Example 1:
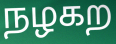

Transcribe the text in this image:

நழகற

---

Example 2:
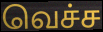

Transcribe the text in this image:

வெச்ச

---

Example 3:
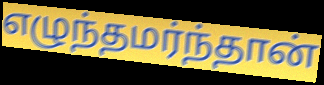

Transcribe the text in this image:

எழுந்தமர்ந்தான்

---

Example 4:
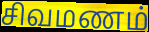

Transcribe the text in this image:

சிவமணம்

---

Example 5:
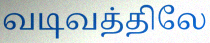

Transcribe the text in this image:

வடிவத்திலே